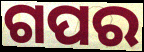
ଗପର